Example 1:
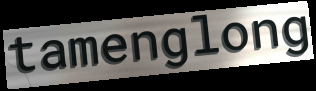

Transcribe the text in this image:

tamenglong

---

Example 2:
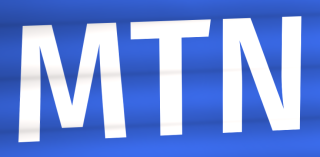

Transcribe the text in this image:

MTN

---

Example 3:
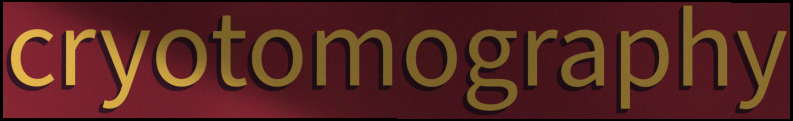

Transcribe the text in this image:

cryotomography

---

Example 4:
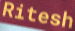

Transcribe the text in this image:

Ritesh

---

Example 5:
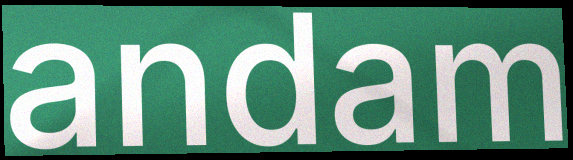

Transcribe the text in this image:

andam